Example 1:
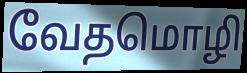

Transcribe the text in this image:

வேதமொழி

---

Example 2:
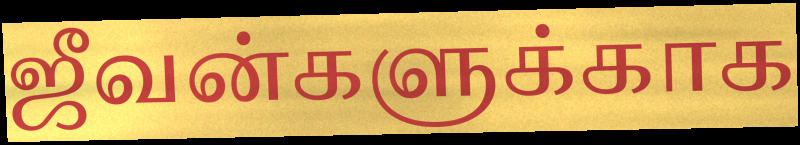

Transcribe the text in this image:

ஜீவன்களுக்காக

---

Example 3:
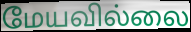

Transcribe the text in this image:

மேயவில்லை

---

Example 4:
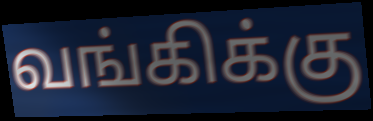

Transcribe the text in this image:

வங்கிக்கு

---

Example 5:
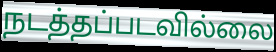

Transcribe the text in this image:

நடத்தப்படவில்லை